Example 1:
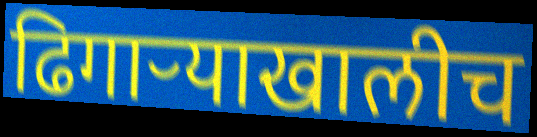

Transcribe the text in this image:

ढिगाऱ्याखालीच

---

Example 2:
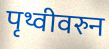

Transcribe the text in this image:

पृथ्वीवरुन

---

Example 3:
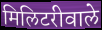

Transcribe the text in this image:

मिलिटरीवाले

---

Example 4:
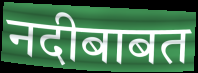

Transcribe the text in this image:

नदीबाबत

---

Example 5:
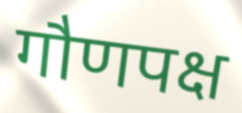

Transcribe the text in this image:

गौणपक्ष